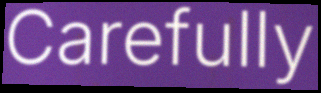
Carefully